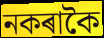
নকৰাকৈ